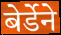
बेर्डेने